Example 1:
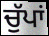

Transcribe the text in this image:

ਚੁੱਪਾਂ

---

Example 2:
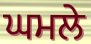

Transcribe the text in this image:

ਘਮਲੇ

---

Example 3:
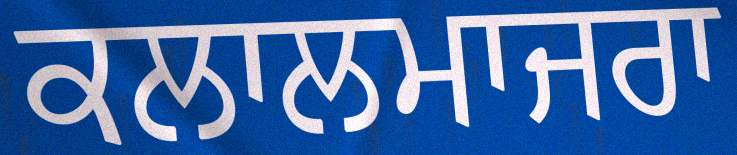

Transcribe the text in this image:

ਕਲਾਲਮਾਜਰਾ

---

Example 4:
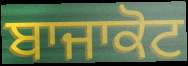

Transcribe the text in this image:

ਬਾਜਾਕੋਟ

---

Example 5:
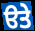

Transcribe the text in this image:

ੳਤੇ